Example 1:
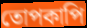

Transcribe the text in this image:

তোপকাপি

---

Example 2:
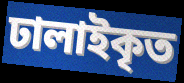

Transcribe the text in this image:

ঢালাইকৃত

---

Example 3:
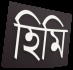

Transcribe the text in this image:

হিমি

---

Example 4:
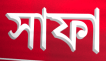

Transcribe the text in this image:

সাফা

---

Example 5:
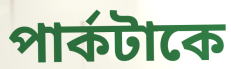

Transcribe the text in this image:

পার্কটাকে